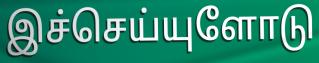
இச்செய்யுளோடு